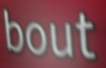
bout